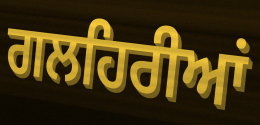
ਗਲਹਿਰੀਆਂ